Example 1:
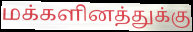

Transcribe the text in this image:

மக்களினத்துக்கு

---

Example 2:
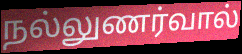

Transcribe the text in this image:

நல்லுணர்வால்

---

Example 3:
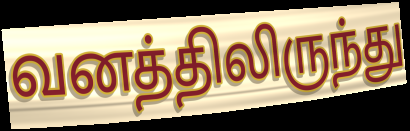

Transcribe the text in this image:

வனத்திலிருந்து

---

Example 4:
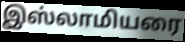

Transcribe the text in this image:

இஸ்லாமியரை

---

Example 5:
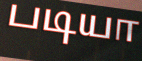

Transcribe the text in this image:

படியா